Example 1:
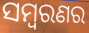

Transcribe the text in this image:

ସମ୍ବରଣର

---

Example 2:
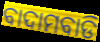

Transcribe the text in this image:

ବାଦାମବାଡି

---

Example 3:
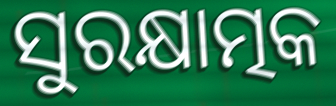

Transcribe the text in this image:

ସୁରକ୍ଷାତ୍ମକ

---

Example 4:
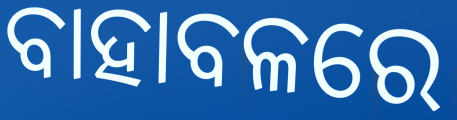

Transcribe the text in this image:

ବାହାବଳରେ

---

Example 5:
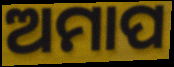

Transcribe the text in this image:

ଅମାପ